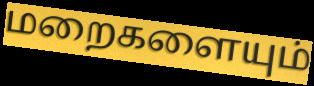
மறைகளையும்